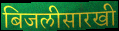
बिजलीसारखी